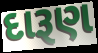
દારૂણ